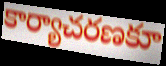
కార్యాచరణకూ